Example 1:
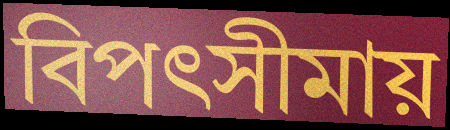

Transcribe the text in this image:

বিপৎসীমায়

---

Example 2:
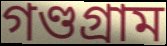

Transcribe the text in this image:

গণ্ডগ্রাম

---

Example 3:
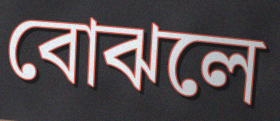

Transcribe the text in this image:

বোঝলে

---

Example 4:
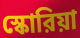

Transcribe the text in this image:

স্কোরিয়া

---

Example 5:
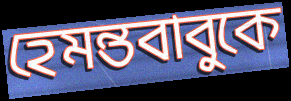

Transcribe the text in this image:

হেমন্তবাবুকে